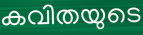
കവിതയുടെ